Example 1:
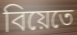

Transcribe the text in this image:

বিয়েতে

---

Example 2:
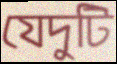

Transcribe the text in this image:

যেদুটি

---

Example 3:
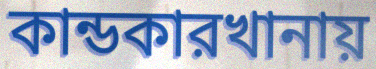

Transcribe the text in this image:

কান্ডকারখানায়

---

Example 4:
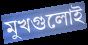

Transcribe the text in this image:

মুখগুলোই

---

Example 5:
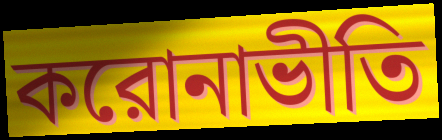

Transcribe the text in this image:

করোনাভীতি